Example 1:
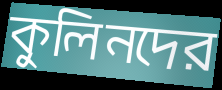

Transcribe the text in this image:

কুলিনদের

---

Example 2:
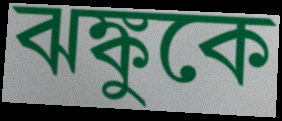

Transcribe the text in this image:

ঝঙ্কুকে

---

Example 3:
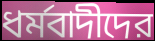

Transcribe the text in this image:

ধর্মবাদীদের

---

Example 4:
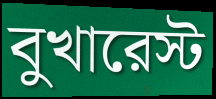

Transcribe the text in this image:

বুখারেস্ট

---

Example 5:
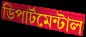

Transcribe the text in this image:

ডিপার্টমেন্টাল